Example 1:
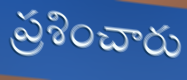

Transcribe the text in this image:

ప్రశించారు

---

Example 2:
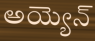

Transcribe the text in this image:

అయ్యెన్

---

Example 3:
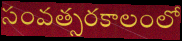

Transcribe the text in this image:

సంవత్సరకాలంలో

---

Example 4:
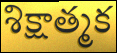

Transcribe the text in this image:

శిక్షాత్మక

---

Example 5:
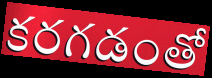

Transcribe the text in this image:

కరగడంతో